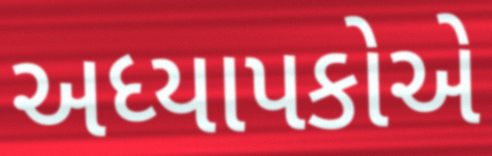
અધ્યાપકોએ